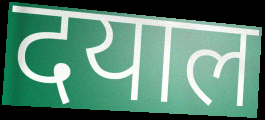
दयाल